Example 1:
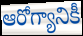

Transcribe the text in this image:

ఆరోగ్యానికీ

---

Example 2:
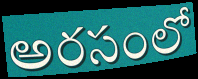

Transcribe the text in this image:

అరసంలో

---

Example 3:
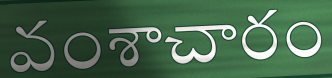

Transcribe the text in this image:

వంశాచారం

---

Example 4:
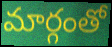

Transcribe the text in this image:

మార్గంతో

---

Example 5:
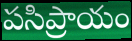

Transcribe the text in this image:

పసిప్రాయం